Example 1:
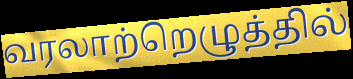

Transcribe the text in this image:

வரலாற்றெழுத்தில்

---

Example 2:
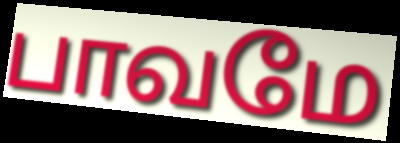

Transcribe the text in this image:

பாவமே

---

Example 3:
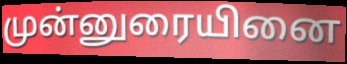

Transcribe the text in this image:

முன்னுரையினை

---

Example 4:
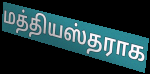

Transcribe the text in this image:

மத்தியஸ்தராக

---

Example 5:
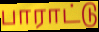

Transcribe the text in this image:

பாராட்டு